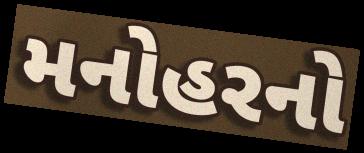
મનોહરનો